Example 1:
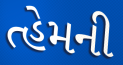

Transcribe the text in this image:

ત્હેમની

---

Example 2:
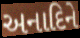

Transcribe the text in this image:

અનાદિને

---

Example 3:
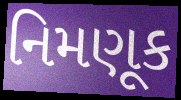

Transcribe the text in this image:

નિમણૂક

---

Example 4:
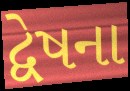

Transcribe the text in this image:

દ્વેષના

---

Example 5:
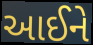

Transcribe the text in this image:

આઈને